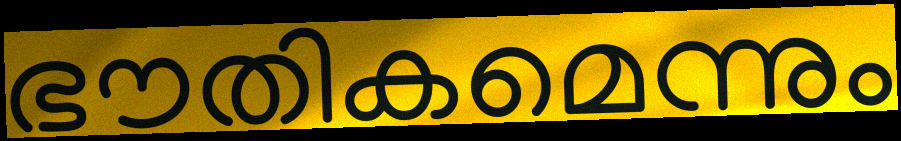
ഭൗതികമെന്നും